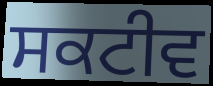
ਸਕਟੀਵ